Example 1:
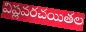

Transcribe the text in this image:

విప్లవరచయితల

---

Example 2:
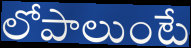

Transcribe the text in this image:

లోపాలుంటే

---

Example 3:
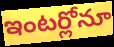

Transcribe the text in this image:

ఇంటర్లోనూ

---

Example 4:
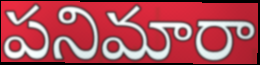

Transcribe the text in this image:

పనిమారా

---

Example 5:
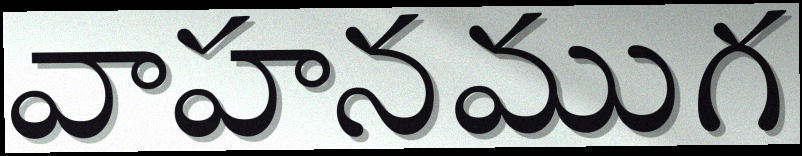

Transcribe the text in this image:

వాహనముగ